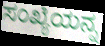
ಸಂಖ್ಯೆಯನ್ನ